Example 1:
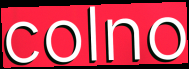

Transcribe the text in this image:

colno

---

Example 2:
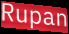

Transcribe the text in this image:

Rupan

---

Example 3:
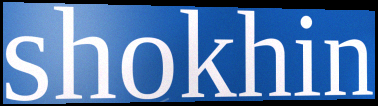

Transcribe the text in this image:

shokhin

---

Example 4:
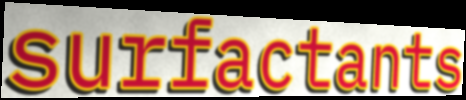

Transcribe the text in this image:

surfactants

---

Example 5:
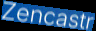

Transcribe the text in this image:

Zencastr